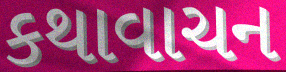
કથાવાચન